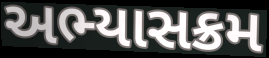
અભ્યાસક્રમ